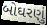
બોઘરણું